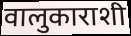
वालुकाराशी